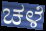
ಚಳೆ